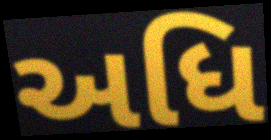
અધિ